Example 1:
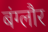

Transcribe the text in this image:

बंग्लौर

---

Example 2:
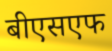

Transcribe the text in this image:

बीएसएफ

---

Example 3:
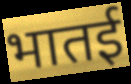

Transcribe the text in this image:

भातई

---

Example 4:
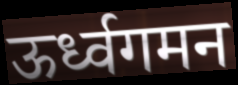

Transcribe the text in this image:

ऊर्ध्वगमन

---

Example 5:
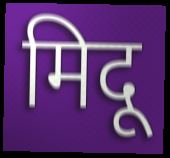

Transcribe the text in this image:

मिदू